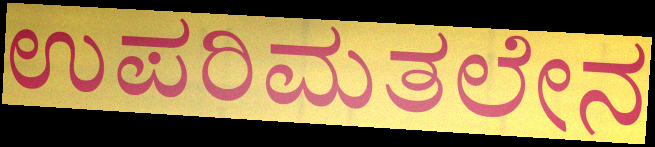
ಉಪರಿಮತಲೇನ